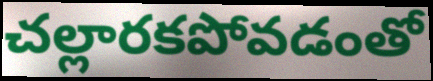
చల్లారకపోవడంతో